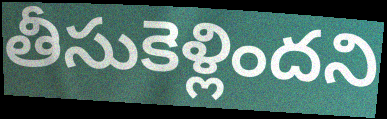
తీసుకెళ్లిందని